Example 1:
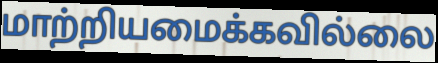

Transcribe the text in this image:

மாற்றியமைக்கவில்லை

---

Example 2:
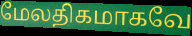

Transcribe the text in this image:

மேலதிகமாகவே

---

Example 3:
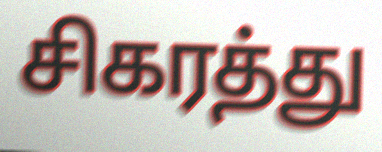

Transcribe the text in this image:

சிகரத்து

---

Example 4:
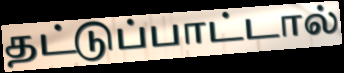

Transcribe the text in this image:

தட்டுப்பாட்டால்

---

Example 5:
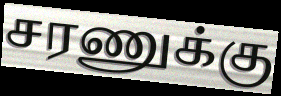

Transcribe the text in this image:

சரணுக்கு